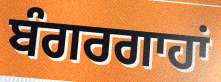
ਬੰਗਰਗਾਹਾਂ